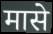
मासे